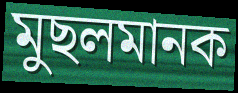
মুছলমানক